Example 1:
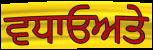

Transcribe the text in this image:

ਵਧਾਓਅਤੇ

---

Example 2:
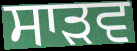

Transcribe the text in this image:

ਸਾੜਵ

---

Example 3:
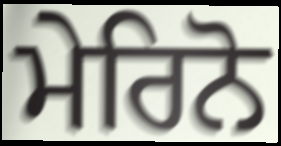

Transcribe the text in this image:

ਮੇਰਿਨੋ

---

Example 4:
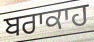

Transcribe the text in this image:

ਬਰਾਕਾਹ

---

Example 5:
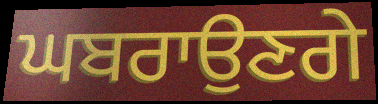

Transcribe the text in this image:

ਘਬਰਾਉਣਗੇ